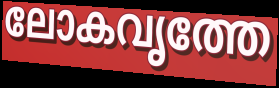
ലോകവൃത്തേ